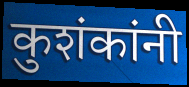
कुशंकांनी